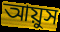
আয়ুস